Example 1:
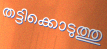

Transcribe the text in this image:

തട്ടിക്കൊടുത്തു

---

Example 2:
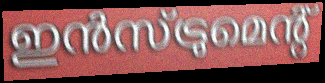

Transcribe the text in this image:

ഇൻസ്ട്രുമെന്റ്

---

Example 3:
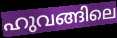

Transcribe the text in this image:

ഹുവങ്ങിലെ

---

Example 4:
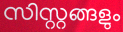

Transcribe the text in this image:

സിസ്റ്റങ്ങളും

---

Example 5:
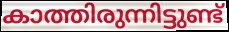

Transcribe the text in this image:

കാത്തിരുന്നിട്ടുണ്ട്